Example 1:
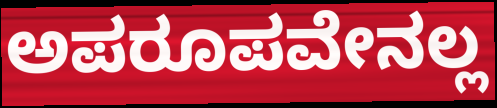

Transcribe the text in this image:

ಅಪರೂಪವೇನಲ್ಲ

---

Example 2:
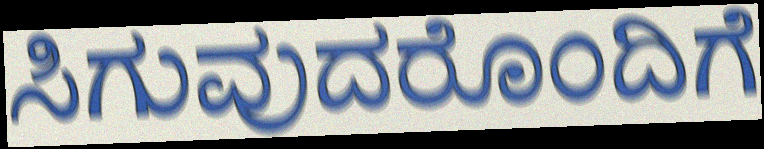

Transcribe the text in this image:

ಸಿಗುವುದರೊಂದಿಗೆ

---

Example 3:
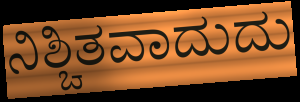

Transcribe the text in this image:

ನಿಶ್ಚಿತವಾದುದು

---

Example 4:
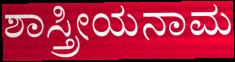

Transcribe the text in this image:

ಶಾಸ್ತ್ರೀಯನಾಮ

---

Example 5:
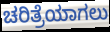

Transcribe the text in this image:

ಚರಿತ್ರೆಯಾಗಲು